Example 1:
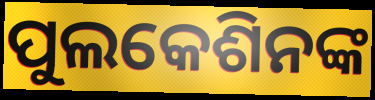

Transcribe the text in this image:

ପୁଲକେଶିନଙ୍କ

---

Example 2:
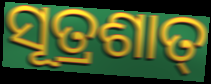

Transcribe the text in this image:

ସୂତ୍ରଶାତ୍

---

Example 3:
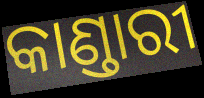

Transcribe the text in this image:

କାଣ୍ଡାରୀ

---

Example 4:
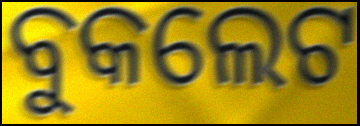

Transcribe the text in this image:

ବୁକଲେଟ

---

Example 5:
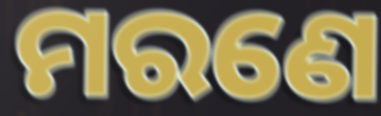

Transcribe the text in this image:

ମରଣେ